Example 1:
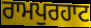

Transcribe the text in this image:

ਰਾਮਪੁਰਹਾਟ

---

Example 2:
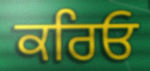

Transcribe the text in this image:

ਕਰਿਓ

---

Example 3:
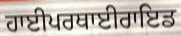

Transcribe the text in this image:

ਹਾਈਪਰਥਾਈਰਾਇਡ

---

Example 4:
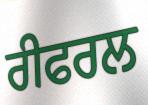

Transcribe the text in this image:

ਰੀਫਰਲ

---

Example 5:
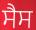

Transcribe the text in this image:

ਸੈਸ